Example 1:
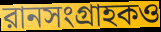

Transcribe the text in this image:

রানসংগ্রাহকও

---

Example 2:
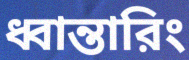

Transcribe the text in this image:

ধ্বান্তারিং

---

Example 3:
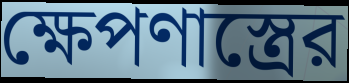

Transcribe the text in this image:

ক্ষেপণাস্ত্রের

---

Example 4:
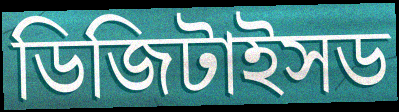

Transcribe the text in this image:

ডিজিটাইসড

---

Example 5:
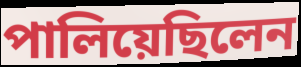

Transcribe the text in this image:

পালিয়েছিলেন